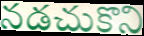
నడచుకొని